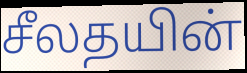
சீலதயின்